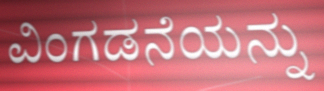
ವಿಂಗಡನೆಯನ್ನು